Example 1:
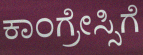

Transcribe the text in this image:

ಕಾಂಗ್ರೇಸ್ಸಿಗೆ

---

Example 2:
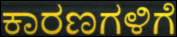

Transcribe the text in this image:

ಕಾರಣಗಳಿಗೆ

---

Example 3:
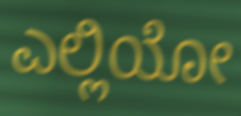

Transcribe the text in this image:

ಎಲ್ಲಿಯೋ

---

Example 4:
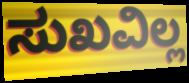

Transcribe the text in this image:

ಸುಖವಿಲ್ಲ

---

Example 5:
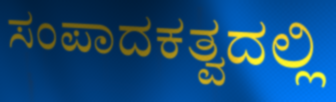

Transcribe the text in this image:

ಸಂಪಾದಕತ್ವದಲ್ಲಿ